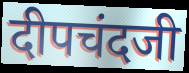
दीपचंदजी